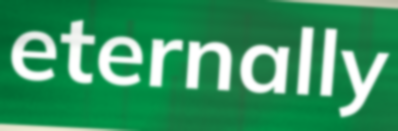
eternally